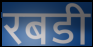
रबडी